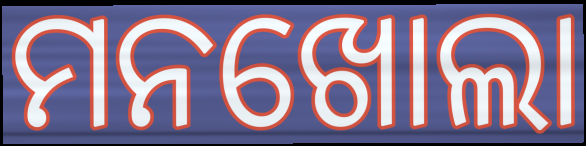
ମନଖୋଲା